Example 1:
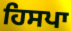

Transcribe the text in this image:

ਹਿਸਪਾ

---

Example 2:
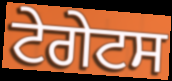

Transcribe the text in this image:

ਟੇਗੇਟਸ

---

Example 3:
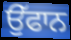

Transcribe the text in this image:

ਉੱਫਾਨ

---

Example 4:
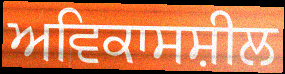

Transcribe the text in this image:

ਅਵਿਕਾਸਸ਼ੀਲ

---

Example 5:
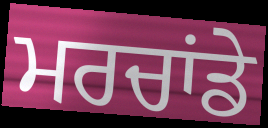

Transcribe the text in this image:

ਮਰਚਾਂਡੇ